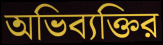
অভিব্যক্তির